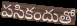
పసికందుతో